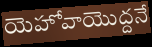
యెహోవాయొద్దనే